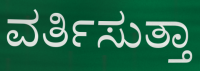
ವರ್ತಿಸುತ್ತಾ